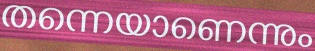
തന്നെയാണെന്നും